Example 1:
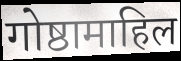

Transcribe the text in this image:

गोष्ठामाहिल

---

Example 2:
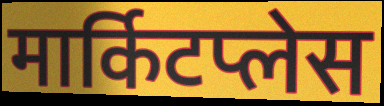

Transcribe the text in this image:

मार्किटप्लेस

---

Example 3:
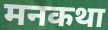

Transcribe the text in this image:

मनकथा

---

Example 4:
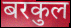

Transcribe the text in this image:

बरकुल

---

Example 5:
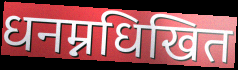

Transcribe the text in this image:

धनम्नधिखित